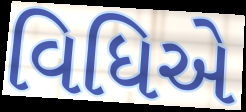
વિધિએ